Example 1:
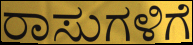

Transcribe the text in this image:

ರಾಸುಗಳಿಗೆ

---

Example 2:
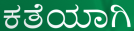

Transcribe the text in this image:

ಕತೆಯಾಗಿ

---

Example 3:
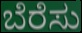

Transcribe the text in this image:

ಬೆರೆಸು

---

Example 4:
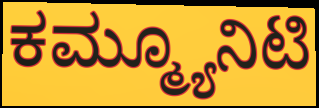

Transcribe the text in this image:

ಕಮ್ಮ್ಯೂನಿಟಿ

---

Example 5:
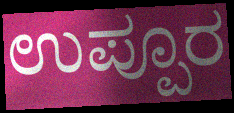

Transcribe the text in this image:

ಉಪ್ಪೂರ